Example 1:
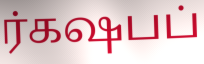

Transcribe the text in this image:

ர்கஷபப்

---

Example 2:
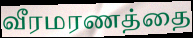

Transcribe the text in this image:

வீரமரணத்தை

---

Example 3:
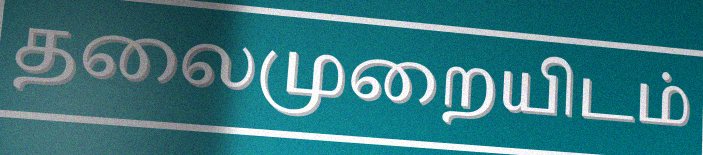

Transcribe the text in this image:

தலைமுறையிடம்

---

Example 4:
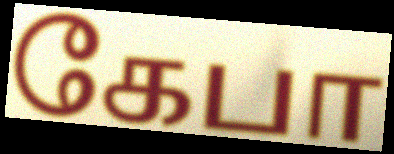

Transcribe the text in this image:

கேபா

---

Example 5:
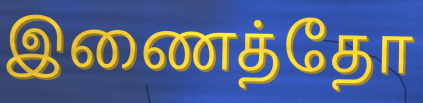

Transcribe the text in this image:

இணைத்தோ